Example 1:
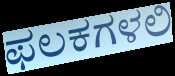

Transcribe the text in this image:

ಫಲಕಗಳಲಿ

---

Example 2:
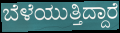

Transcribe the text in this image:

ಬೆಳೆಯುತ್ತಿದ್ದಾರೆ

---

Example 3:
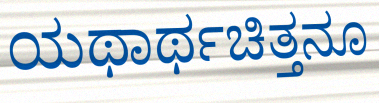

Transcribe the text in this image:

ಯಥಾರ್ಥಚಿತ್ತನೂ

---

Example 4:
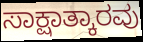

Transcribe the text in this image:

ಸಾಕ್ಷಾತ್ಕಾರವು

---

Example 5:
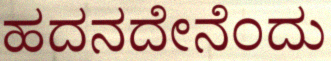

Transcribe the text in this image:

ಹದನದೇನೆಂದು